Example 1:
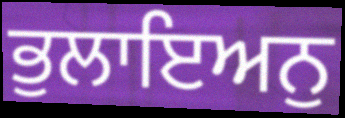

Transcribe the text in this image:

ਭੁਲਾਇਅਨੁ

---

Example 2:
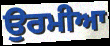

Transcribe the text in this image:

ਉਰਮੀਆ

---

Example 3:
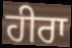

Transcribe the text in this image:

ਹੀਰਾ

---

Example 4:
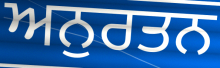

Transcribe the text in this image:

ਅਨੁਰਤਨ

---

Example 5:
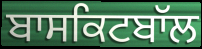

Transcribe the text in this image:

ਬਾਸਕਿਟਬਾੱਲ